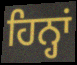
ਹਿਨ੍ਹਾਂ